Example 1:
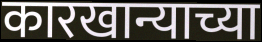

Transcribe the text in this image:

कारखान्याच्या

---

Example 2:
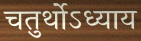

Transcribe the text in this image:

चतुर्थोऽध्याय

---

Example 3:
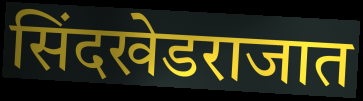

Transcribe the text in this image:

सिंदखेडराजात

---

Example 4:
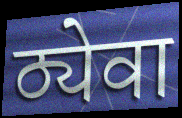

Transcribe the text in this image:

ठ्येवा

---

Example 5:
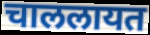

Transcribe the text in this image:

चाललायत